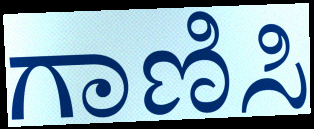
ಗಾಣಿಸಿ